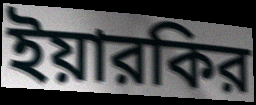
ইয়ারকির